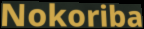
Nokoriba